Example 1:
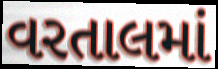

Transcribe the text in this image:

વરતાલમાં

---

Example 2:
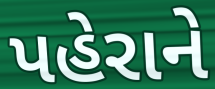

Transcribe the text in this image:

પહેરાને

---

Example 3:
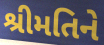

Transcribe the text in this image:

શ્રીમતિને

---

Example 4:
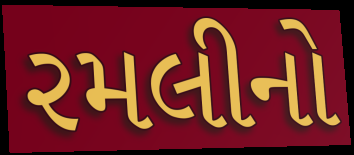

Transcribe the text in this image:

રમલીનો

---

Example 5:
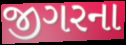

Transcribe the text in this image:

જીગરના